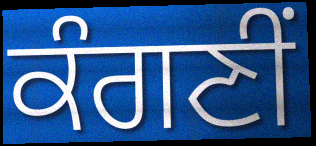
ਕੰਗਣੀਂ